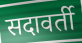
सदावर्ती